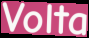
Volta